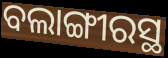
ବଲାଙ୍ଗୀରସ୍ଥ